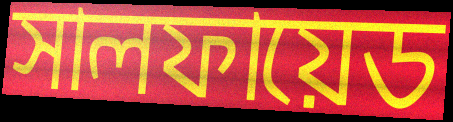
সালফায়েড